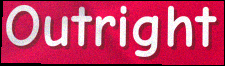
Outright